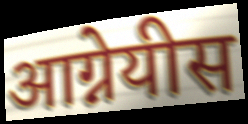
आग्नेयीस